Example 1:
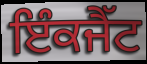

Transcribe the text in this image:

ਇੰਕਜੈੱਟ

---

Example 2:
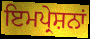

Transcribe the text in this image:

ਇਮਪ੍ਰੇਸ਼ਨਾਂ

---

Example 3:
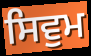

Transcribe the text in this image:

ਸਿਵੁਮ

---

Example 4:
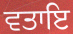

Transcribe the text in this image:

ਵਤਾਇ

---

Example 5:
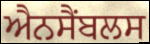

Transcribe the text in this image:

ਐਨਸੈਂਬਲਸ